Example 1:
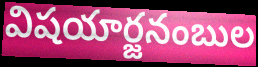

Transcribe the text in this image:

విషయార్జనంబుల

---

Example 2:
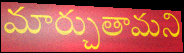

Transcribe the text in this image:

మార్చుతామని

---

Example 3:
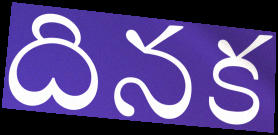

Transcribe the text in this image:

దినక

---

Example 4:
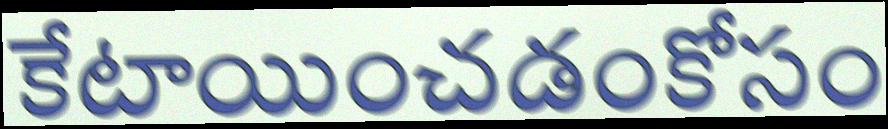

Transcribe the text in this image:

కేటాయించడంకోసం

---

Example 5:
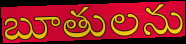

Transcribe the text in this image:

బూతులను